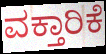
ವಕ್ತಾರಿಕೆ